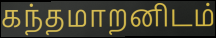
கந்தமாறனிடம்